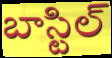
బాస్టిల్